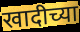
खादीच्या